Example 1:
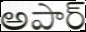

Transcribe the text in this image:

అపార్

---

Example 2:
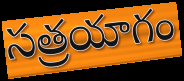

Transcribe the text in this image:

సత్రయాగం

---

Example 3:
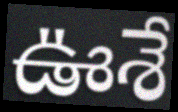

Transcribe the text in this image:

ఊశే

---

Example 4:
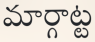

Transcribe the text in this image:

మార్గాట్ట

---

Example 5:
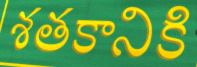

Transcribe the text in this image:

శతకానికి